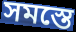
সমস্তে